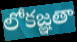
లోకజ్ఞతా